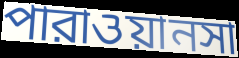
পারাওয়ানসা